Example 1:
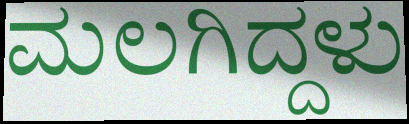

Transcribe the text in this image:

ಮಲಗಿದ್ದಳು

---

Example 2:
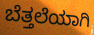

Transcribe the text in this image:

ಬೆತ್ತಲೆಯಾಗಿ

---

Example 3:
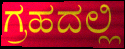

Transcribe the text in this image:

ಗ್ರಹದಲ್ಲಿ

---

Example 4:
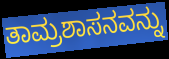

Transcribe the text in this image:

ತಾಮ್ರಶಾಸನವನ್ನು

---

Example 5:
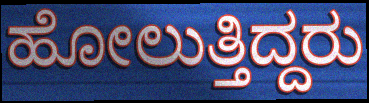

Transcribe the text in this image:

ಹೋಲುತ್ತಿದ್ದರು